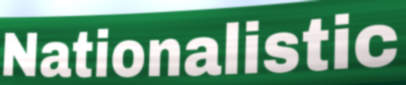
Nationalistic